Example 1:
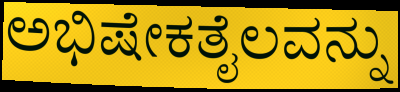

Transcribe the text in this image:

ಅಭಿಷೇಕತೈಲವನ್ನು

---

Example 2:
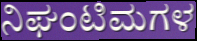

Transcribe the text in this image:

ನಿಘಂಟಿಮಗಳ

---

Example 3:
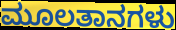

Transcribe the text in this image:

ಮೂಲತಾನಗಳು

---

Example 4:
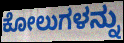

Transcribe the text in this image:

ಕೋಲುಗಳನ್ನು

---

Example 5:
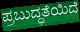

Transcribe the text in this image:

ಪ್ರಬುದ್ಧತೆಯಿದೆ